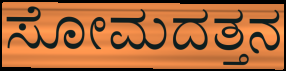
ಸೋಮದತ್ತನ